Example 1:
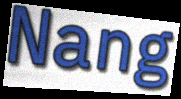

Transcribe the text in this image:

Nang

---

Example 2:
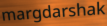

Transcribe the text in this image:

margdarshak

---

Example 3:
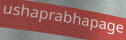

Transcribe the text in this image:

ushaprabhapage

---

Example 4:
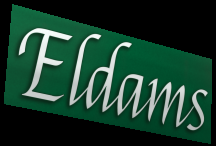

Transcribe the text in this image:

Eldams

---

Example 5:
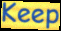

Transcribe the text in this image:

Keep